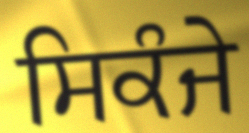
ਸਿਕੰਜੇ